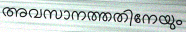
അവസാനത്തതിനേയും